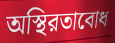
অস্থিরতাবোধ